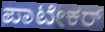
ಪಾಟೇಕರ್